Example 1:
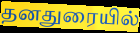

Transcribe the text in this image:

தனதுரையில்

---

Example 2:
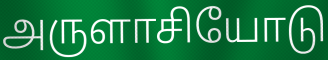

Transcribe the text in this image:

அருளாசியோடு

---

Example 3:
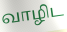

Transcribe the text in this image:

வாழிட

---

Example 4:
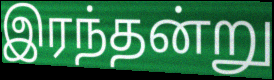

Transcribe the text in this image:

இரந்தன்று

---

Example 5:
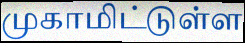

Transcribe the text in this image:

முகாமிட்டுள்ள